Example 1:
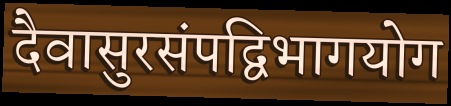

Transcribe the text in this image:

दैवासुरसंपद्विभागयोग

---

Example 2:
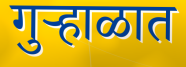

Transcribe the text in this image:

गुऱ्हाळात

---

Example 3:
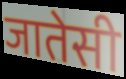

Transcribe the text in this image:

जातेसी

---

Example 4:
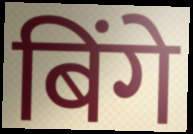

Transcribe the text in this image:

बिंगे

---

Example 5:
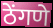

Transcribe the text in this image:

ठेंगणे